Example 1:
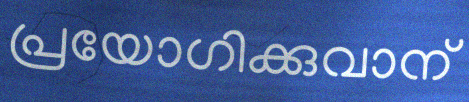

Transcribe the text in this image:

പ്രയോഗിക്കുവാന്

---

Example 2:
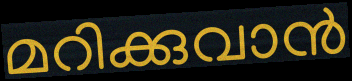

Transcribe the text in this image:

മറിക്കുവാൻ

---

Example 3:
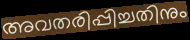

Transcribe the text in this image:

അവതരിപ്പിച്ചതിനും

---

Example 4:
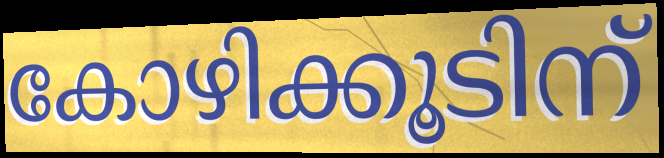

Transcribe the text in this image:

കോഴിക്കൂടിന്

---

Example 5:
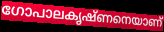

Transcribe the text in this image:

ഗോപാലകൃഷ്ണനെയാണ്